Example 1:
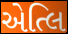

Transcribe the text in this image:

એત્લિ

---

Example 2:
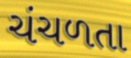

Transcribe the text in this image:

ચંચળતા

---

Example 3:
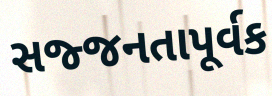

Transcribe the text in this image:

સજ્જનતાપૂર્વક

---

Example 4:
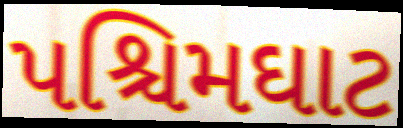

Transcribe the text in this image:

પશ્ચિમઘાટ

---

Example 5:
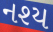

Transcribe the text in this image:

નશ્ય